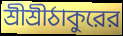
শ্রীশ্রীঠাকুরের